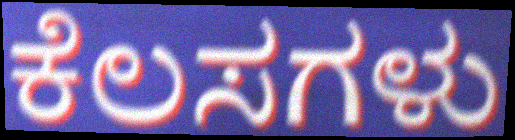
ಕೆಲಸಗಳು